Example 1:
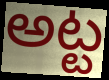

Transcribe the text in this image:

అట్ట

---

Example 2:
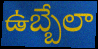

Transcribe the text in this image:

ఉబ్బేలా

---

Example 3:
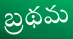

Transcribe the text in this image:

బ్రథమ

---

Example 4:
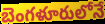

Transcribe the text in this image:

బెంగళూరులోనే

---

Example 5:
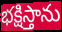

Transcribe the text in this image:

భక్షిస్తాను